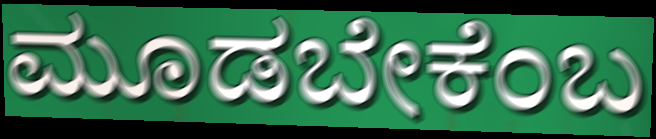
ಮೂಡಬೇಕೆಂಬ